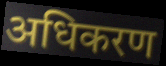
अधिकरण